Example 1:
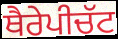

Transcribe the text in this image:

ਥੈਰੇਪੀਚੱਟ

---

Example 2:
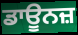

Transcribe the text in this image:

ਡਾਊਨਜ਼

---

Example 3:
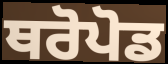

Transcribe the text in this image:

ਥਰੋਪੋਡ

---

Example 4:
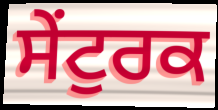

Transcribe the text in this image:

ਸੇਂਟੁਰਕ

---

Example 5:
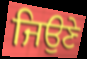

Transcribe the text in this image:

ਜਿਉਣੇ